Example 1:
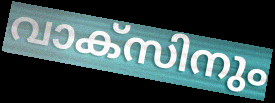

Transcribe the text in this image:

വാക്സിനും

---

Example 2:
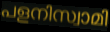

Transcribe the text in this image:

പളനിസ്വാമി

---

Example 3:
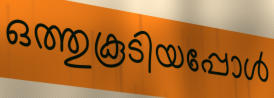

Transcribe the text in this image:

ഒത്തുകൂടിയപ്പോൾ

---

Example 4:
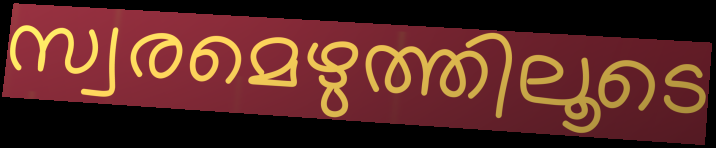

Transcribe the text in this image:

സ്വരമെഴുത്തിലൂടെ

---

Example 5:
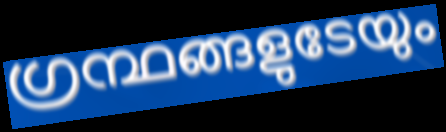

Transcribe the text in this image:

ഗ്രന്ഥങ്ങളുടേയും